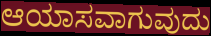
ಆಯಾಸವಾಗುವುದು